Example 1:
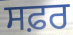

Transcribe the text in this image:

ਸਫ਼ਰ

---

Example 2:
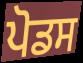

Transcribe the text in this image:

ਪੋਡਸ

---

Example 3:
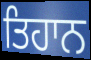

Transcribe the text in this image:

ਤਿਹਾਨ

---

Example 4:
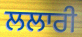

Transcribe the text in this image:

ਲਲਾਰੀ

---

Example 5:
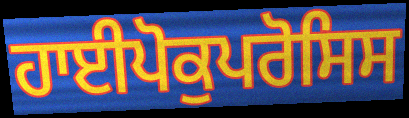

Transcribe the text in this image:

ਹਾਈਪੋਕੁਪਰੋਸਿਸ